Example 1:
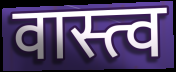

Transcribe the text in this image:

वास्त्व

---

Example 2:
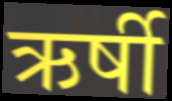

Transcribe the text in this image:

ऋर्षी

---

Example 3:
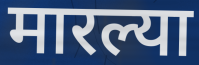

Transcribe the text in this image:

मारल्या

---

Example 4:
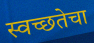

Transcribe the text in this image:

स्वच्छतेचा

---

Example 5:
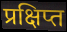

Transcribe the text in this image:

प्रक्षिप्त